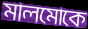
মালমোকে